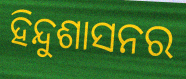
ହିନ୍ଦୁଶାସନର